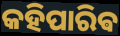
କହିପାରିଵ